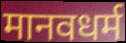
मानवधर्म